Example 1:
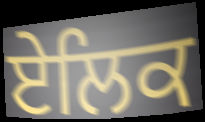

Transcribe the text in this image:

ਏਲਿਕ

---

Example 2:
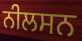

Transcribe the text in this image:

ਨੀਲਸਨ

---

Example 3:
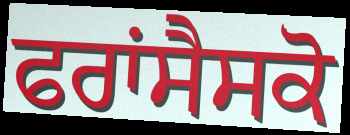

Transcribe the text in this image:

ਫਰਾਂਸੈਸਕੋ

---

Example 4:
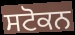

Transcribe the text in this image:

ਸਟੋਕਨ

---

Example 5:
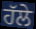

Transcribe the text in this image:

ਹੱਲੇ